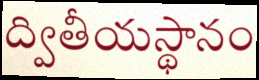
ద్వితీయస్థానం